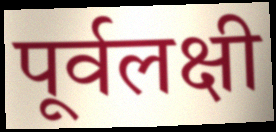
पूर्वलक्षी